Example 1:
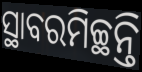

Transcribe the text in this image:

ସ୍ଥାବରମିଚ୍ଛନ୍ତି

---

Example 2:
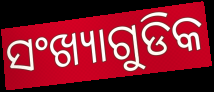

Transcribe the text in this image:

ସଂଖ୍ୟାଗୁଡିକ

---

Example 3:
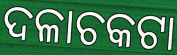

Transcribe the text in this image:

ଦଳାଚକଟା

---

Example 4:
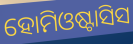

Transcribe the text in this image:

ହୋମିଓଷ୍ଟାସିସ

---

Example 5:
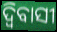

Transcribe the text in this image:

ଦ୍ବିବାସୀ